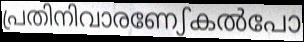
പ്രതിനിവാരണേഽകൽപോ